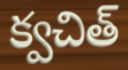
క్వచిత్